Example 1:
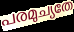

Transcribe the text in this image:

പരമുച്യതേ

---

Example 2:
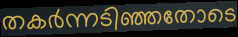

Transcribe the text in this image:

തകർന്നടിഞ്ഞതോടെ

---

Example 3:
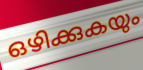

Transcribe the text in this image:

ഒഴിക്കുകയും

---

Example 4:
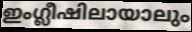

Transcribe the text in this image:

ഇംഗ്ലീഷിലായാലും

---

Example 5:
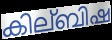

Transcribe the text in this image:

കില്ബിഷ